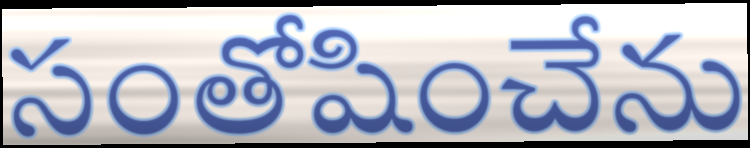
సంతోషించేను